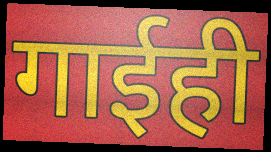
गाईही